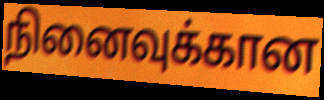
நினைவுக்கான